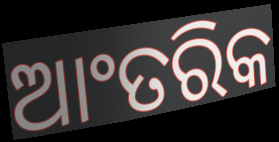
ଆଂତରିକ